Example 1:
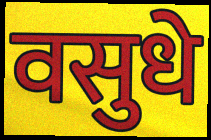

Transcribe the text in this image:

वसुधे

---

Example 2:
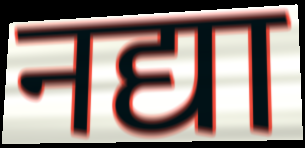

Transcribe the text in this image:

नद्या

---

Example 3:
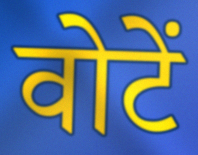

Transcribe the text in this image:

वोटें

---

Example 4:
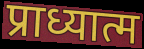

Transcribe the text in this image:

प्राध्यात्म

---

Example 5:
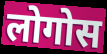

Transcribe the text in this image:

लोगोस